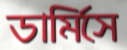
ডার্মিসে